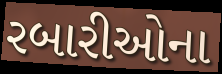
રબારીઓના